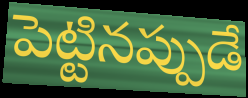
పెట్టినప్పుడే